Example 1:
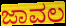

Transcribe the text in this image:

ಜಾವಲ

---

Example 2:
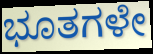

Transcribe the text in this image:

ಭೂತಗಳೇ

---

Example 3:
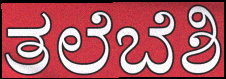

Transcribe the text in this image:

ತಲೆಬೆಶಿ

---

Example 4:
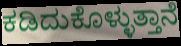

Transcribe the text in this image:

ಕಡಿದುಕೊಳ್ಳುತ್ತಾನೆ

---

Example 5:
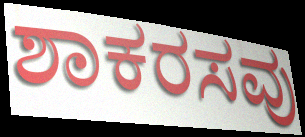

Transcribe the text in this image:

ಶಾಕರಸವು